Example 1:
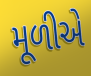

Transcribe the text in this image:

મૂળીએ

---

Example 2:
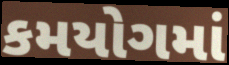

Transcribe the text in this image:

કમયોગમાં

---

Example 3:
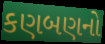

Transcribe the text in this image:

કણબણનો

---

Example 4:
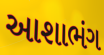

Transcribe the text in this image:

આશાભંગ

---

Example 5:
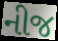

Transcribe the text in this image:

નીજ